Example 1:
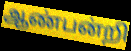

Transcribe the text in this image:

ஆண்பன்றி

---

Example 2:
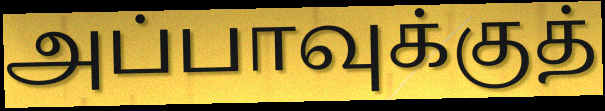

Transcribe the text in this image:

அப்பாவுக்குத்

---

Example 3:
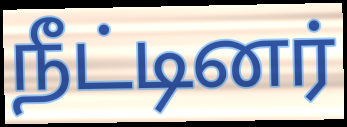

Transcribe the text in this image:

நீட்டினர்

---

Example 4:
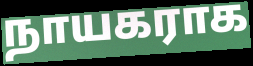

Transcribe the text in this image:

நாயகராக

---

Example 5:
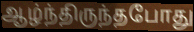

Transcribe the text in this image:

ஆழ்ந்திருந்தபோது